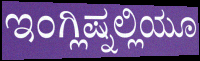
ಇಂಗ್ಲಿಷ್ನಲ್ಲಿಯೂ